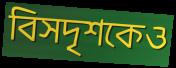
বিসদৃশকেও